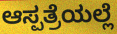
ಆಸ್ಪತ್ರೆಯಲ್ಲೆ